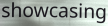
showcasing